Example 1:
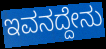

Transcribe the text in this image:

ಇವನದ್ದೇನು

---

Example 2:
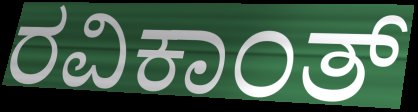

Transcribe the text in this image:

ರವಿಕಾಂತ್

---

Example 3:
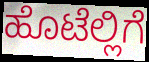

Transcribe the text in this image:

ಹೊಟೆಲ್ಲಿಗೆ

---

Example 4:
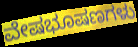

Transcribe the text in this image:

ವೇಷಭೂಷಣಗಳು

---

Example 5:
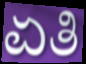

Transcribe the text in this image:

ಏತಿ